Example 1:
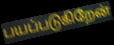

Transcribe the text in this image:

பயப்படுகிறேன்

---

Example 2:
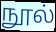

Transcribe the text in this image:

நூல்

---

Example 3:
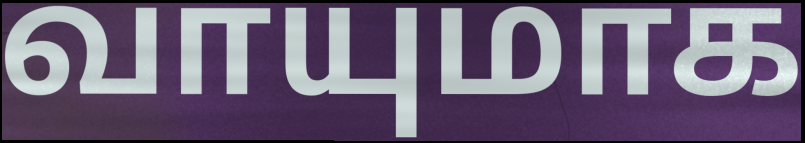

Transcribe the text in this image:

வாயுமாக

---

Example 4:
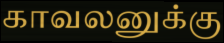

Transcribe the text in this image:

காவலனுக்கு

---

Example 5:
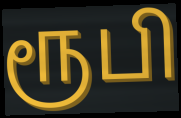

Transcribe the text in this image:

ரூபி